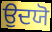
ਉਦਯੋ